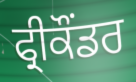
ਫ੍ਰੀਕੌਂਡਰ